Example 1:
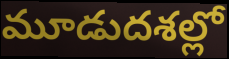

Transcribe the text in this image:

మూడుదశల్లో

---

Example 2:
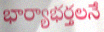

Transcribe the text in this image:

భార్యాభర్తలనే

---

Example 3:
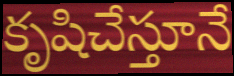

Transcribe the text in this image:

కృషిచేస్తూనే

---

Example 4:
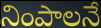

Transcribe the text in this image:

నింపాలనే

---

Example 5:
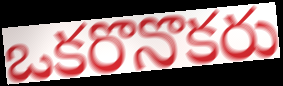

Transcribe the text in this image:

ఒకరొనొకరు